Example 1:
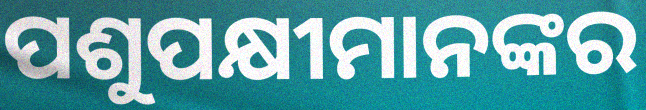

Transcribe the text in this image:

ପଶୁପକ୍ଷୀମାନଙ୍କର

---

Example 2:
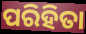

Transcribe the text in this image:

ପରିହିତା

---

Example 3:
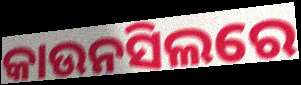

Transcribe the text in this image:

କାଉନସିଲରେ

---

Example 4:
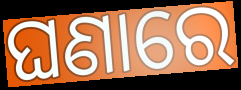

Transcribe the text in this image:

ଘଣାରେ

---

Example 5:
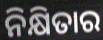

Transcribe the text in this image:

ନିକ୍ଷିତାର